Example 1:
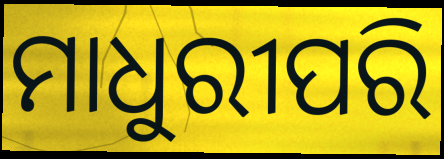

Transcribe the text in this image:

ମାଧୁରୀପରି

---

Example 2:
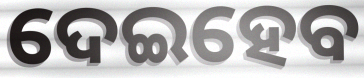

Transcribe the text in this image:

ଦେଇହେବ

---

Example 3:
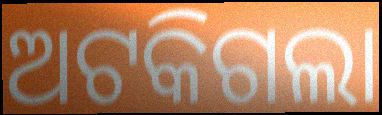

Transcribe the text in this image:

ଅଟକିଗଲା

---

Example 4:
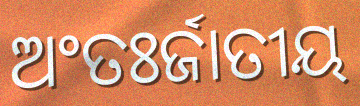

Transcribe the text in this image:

ଅଂତଃର୍ଜାତୀୟ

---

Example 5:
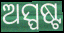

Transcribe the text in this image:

ଅସ୍ପଷ୍ଟ